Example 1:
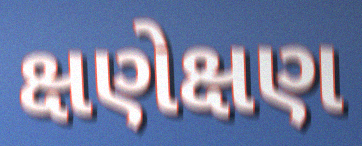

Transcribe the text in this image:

ક્ષણેક્ષણ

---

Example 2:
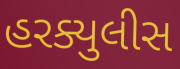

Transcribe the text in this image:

હરક્યુલીસ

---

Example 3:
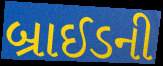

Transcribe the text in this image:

બ્રાઈડની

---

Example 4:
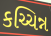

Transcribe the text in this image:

કચ્ચિન્ન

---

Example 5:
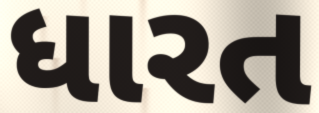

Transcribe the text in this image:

ધારત